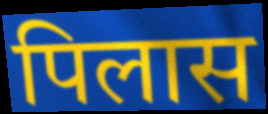
पिलास